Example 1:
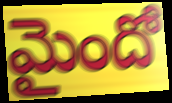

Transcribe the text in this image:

మైందో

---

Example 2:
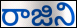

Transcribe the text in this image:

రాజిని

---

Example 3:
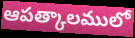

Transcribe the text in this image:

ఆపత్కాలములో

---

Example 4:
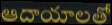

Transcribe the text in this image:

ఆదాయాలతో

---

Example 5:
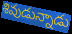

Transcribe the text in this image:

శివుడున్నాడు